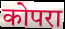
कोपरा